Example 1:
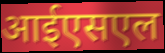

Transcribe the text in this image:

आईएसएल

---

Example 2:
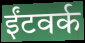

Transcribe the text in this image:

ईंटवर्क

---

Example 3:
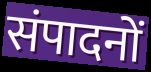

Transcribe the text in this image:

संपादनों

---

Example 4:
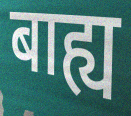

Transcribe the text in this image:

बाह्य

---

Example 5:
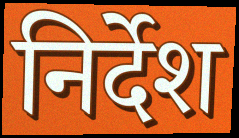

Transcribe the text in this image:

निर्देश